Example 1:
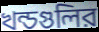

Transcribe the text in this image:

খন্ডগুলির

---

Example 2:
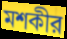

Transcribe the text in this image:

মশকীর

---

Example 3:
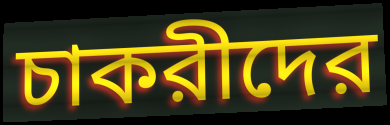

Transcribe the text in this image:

চাকরীদের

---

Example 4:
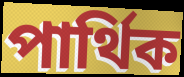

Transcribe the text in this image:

পার্থিক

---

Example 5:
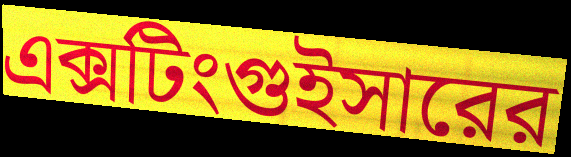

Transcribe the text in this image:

এক্সটিংগুইসারের